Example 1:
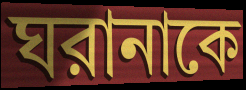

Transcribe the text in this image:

ঘরানাকে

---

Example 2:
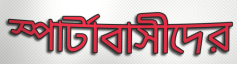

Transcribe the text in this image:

স্পার্টাবাসীদের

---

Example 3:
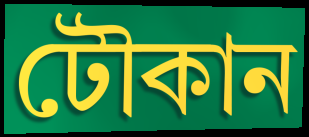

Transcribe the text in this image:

টৌকান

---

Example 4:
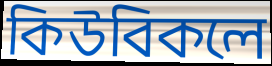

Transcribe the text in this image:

কিউবিকলে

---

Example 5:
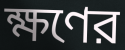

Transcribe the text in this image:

ক্ষণের